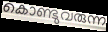
കൊണ്ടുവരുന്ന